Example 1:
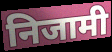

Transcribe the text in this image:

निजामी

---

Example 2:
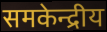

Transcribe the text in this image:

समकेन्द्रीय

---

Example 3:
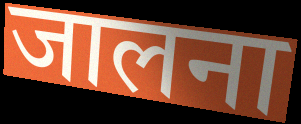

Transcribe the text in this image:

जालना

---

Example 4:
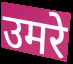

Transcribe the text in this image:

उमरे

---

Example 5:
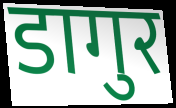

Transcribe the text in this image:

डागुर